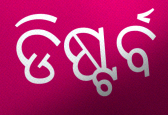
ଡିଷ୍ଟର୍ବ